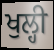
ਖੁਲ੍ਹੀ